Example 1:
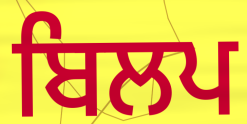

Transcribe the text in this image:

ਬਿਲਪ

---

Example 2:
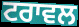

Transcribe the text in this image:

ਟਰਾਵਲ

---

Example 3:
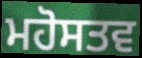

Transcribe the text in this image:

ਮਹੋਸਤਵ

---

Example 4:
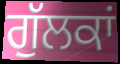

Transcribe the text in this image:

ਗੁੱਲਕਾਂ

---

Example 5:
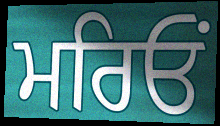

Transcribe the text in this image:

ਮਰਿਓਂ